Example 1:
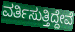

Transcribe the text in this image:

ವರ್ತಿಸುತ್ತಿದ್ದೇವೆ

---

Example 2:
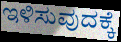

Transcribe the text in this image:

ಇಳಿಸುವುದಕ್ಕೆ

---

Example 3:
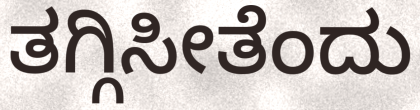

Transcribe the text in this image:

ತಗ್ಗಿಸೀತೆಂದು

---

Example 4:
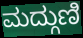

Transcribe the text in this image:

ಮದ್ಗುಣಿ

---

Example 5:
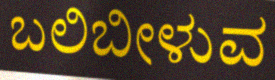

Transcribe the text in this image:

ಬಲಿಬೀಳುವ